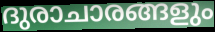
ദുരാചാരങ്ങളും